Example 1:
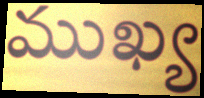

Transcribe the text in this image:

ముఖ్య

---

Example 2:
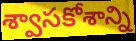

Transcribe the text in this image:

శ్వాసకోశాన్ని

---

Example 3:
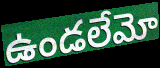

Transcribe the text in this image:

ఉండలేమో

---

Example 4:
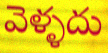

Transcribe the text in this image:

వెళ్ళదు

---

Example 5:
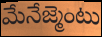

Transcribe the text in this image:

మేనేజ్మెంటు